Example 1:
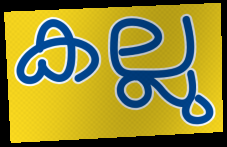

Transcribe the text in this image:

കല്ലു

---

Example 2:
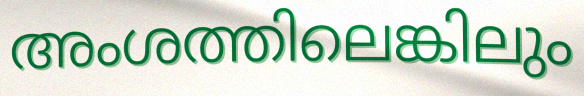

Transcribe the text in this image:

അംശത്തിലെങ്കിലും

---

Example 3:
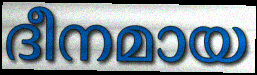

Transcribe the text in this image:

ദീനമായ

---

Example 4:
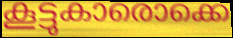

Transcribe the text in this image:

കൂട്ടുകാരൊക്കെ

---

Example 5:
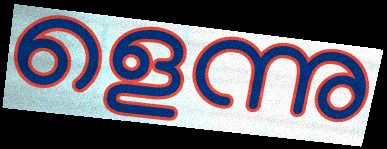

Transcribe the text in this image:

ളെന്നു